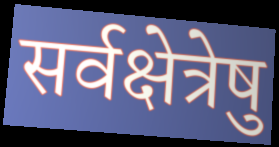
सर्वक्षेत्रेषु